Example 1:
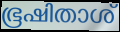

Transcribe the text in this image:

ഭൂഷിതാശ്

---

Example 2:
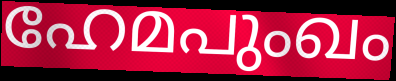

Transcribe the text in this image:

ഹേമപുംഖം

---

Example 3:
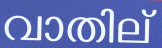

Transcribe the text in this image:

വാതില്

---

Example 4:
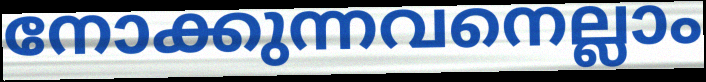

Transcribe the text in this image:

നോക്കുന്നവനെല്ലാം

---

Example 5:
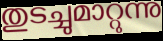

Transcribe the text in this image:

തുടച്ചുമാറ്റുന്നു